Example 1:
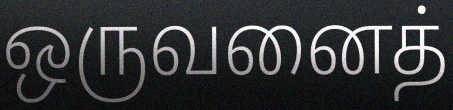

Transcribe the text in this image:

ஒருவனைத்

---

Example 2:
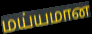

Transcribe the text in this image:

மய்யமான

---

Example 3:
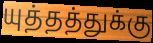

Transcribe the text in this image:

யுத்தத்துக்கு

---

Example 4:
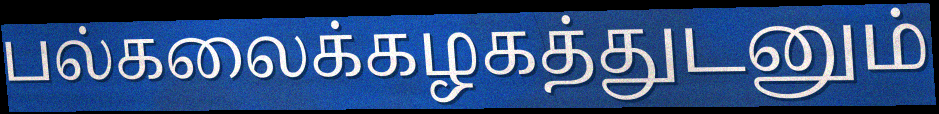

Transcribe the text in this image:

பல்கலைக்கழகத்துடனும்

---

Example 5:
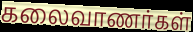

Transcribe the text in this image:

கலைவாணர்கள்